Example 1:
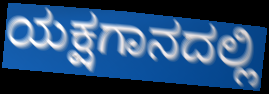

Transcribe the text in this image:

ಯಕ್ಷಗಾನದಲ್ಲಿ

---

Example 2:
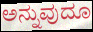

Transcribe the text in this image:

ಅನ್ನುವುದೂ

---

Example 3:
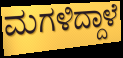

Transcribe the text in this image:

ಮಗಳಿದ್ದಾಳೆ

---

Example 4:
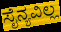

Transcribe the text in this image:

ಸೈನ್ಯವಿಲ್ಲ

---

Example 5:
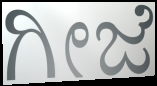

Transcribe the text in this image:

ಗೀಜೆ